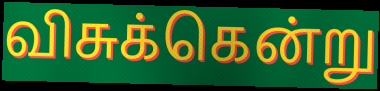
விசுக்கென்று